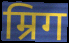
म्रिग